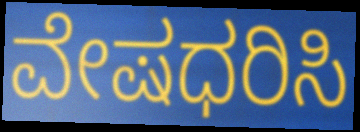
ವೇಷಧರಿಸಿ